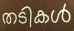
തടികൾ